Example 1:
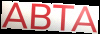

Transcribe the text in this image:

ABTA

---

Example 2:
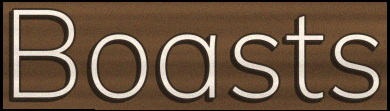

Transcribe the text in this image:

Boasts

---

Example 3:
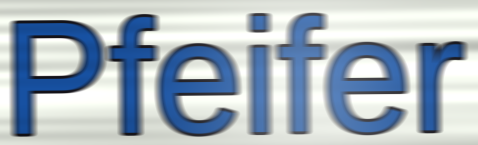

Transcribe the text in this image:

Pfeifer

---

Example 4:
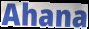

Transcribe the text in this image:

Ahana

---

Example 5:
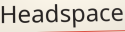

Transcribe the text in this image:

Headspace